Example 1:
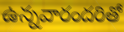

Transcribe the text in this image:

ఉన్నవారందరితో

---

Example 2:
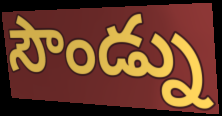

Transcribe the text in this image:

సౌండ్ను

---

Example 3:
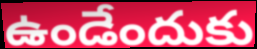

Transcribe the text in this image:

ఉండేందుకు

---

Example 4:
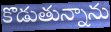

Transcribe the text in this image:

కొడుతున్నాను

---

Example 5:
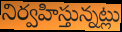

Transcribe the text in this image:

నిర్వహిస్తున్నట్లు